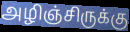
அழிஞ்சிருக்கு